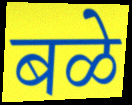
बळे